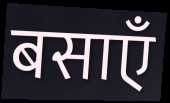
बसाएँ